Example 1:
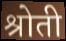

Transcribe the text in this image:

श्रोती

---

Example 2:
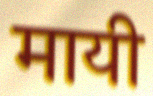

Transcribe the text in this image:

मायी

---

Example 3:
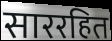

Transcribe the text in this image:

साररहित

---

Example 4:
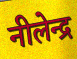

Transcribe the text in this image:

नीलेन्द्र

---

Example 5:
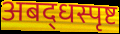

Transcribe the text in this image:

अबद्धस्पृष्ट